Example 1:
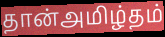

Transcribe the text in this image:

தான்அமிழ்தம்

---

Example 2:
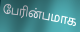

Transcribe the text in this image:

பேரின்பமாக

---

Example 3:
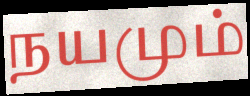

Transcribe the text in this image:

நயமும்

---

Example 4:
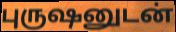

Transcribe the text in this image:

புருஷனுடன்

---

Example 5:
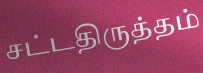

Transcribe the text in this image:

சட்டதிருத்தம்